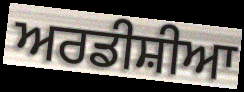
ਅਰਡੀਸ਼ੀਆ